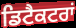
ਡਿਟੈਕਟਰਾਂ